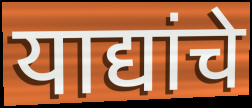
याद्यांचे